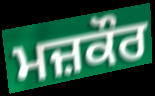
ਮਜ਼ਕੌਰ